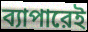
ব্যাপারেই